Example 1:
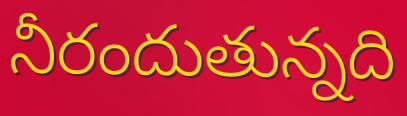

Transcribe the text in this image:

నీరందుతున్నది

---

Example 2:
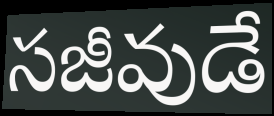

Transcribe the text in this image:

సజీవుడే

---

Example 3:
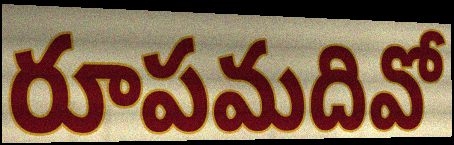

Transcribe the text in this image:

రూపమదివో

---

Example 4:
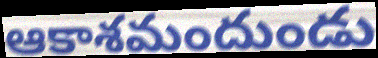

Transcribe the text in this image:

ఆకాశమందుండు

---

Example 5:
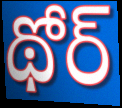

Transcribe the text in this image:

థోర్